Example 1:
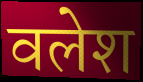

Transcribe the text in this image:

वलेश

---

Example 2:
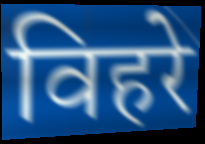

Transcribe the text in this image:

विहरे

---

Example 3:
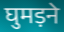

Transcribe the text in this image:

घुमड़ने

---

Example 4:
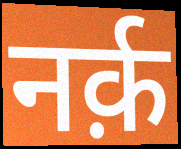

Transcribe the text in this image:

नर्क़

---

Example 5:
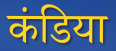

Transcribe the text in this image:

कंडिया